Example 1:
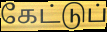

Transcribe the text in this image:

கேட்டுப்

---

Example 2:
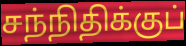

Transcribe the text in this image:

சந்நிதிக்குப்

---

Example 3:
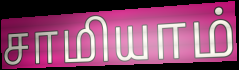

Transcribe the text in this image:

சாமியாம்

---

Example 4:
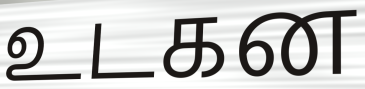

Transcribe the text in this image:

உடகன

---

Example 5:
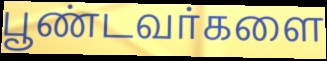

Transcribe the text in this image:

பூண்டவர்களை